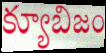
క్యూబిజం